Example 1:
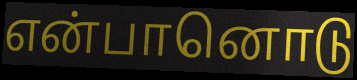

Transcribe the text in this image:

என்பானொடு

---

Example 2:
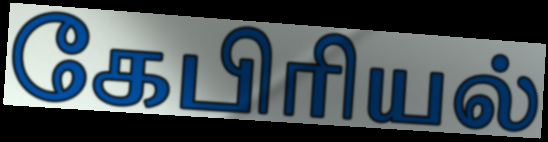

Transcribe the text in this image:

கேபிரியல்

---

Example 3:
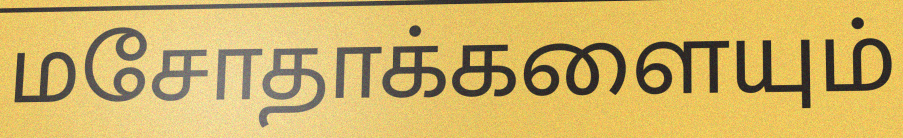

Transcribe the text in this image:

மசோதாக்களையும்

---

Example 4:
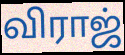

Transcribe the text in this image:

விராஜ்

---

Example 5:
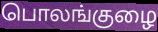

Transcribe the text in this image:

பொலங்குழை